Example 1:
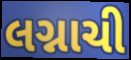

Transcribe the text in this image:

લગ્નાચી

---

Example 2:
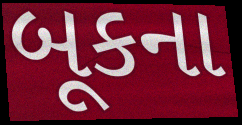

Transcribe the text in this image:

બૂકના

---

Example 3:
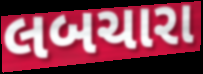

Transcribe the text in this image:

લબચારા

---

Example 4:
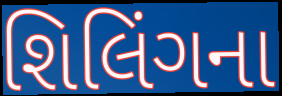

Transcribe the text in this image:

શિલિંગના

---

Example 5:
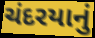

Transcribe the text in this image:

ચંદરયાનું